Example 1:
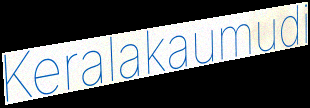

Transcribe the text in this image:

Keralakaumudi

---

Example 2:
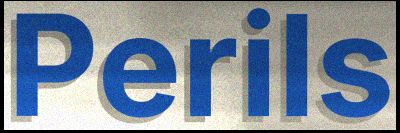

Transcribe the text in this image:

Perils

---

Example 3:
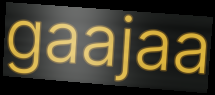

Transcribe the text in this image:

gaajaa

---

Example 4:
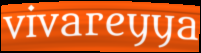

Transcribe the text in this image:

vivareyya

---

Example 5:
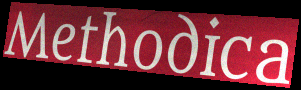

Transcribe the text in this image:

Methodica